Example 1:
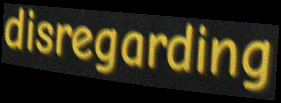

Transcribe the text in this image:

disregarding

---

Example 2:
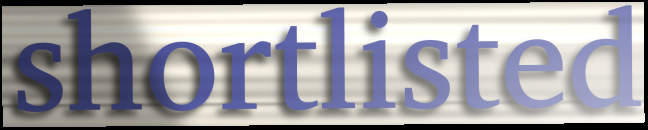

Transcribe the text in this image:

shortlisted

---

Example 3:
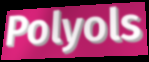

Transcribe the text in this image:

Polyols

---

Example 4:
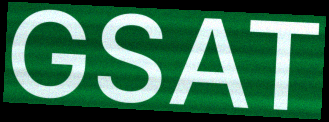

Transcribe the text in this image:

GSAT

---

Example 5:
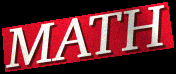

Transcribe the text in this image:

MATH